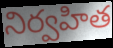
నిర్వహిత